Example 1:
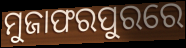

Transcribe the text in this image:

ମୁଜାଫରପୁରରେ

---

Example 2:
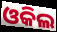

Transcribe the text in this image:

ଓକିଲ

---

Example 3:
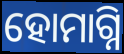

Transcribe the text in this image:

ହୋମାଗ୍ନି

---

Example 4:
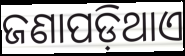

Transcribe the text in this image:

ଜଣାପଡ଼ିଥାଏ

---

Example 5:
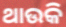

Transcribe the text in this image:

ଥାଉକି